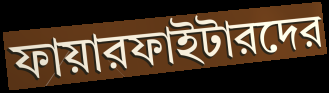
ফায়ারফাইটারদের